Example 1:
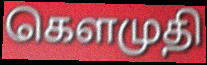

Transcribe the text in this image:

கௌமுதி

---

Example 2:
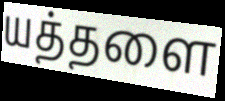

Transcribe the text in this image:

யத்தளை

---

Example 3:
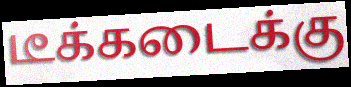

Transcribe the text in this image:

டீக்கடைக்கு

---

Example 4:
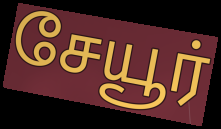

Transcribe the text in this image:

சேயூர்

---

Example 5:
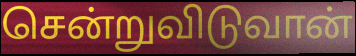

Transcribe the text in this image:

சென்றுவிடுவான்